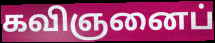
கவிஞனைப்